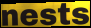
nests